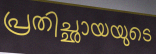
പ്രതിച്ഛായയുടെ